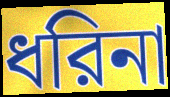
ধরিনা